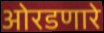
ओरडणारे